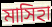
মাসিহা